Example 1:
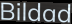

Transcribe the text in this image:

Bildad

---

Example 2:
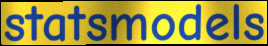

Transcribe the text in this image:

statsmodels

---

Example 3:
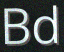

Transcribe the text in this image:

Bd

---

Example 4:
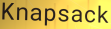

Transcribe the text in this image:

Knapsack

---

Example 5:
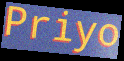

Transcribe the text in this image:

Priyo